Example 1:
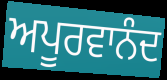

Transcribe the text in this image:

ਅਪੂਰਵਾਨੰਦ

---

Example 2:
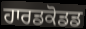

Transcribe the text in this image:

ਹਾਰਡਕੋਡਡ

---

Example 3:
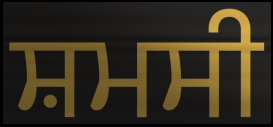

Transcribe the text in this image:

ਸ਼ਮਸੀ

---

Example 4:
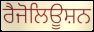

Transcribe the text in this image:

ਰੈਜੋਲਿਊਸ਼ਨ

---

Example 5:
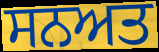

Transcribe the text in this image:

ਸਨਅਤ